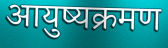
आयुष्यक्रमण